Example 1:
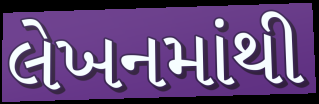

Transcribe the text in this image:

લેખનમાંથી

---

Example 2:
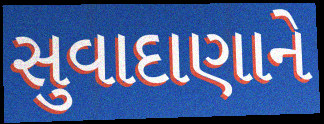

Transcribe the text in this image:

સુવાદાણાને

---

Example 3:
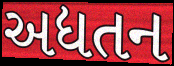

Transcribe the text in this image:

અદ્યતન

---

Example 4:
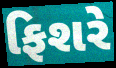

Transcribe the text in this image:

ફિશરે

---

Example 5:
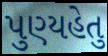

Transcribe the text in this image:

પુણ્યહેતુ